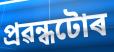
প্ৰৱন্ধটোৰ